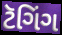
ટૅગિંગ